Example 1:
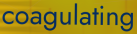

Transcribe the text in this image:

coagulating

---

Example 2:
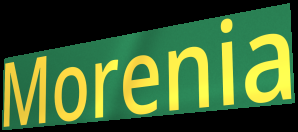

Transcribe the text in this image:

Morenia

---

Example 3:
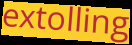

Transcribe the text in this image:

extolling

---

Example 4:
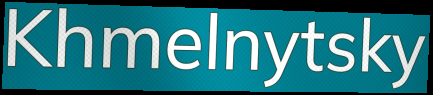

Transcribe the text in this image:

Khmelnytsky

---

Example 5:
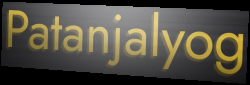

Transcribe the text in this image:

Patanjalyog